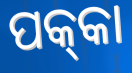
ପକ୍‍କା